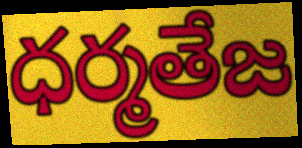
ధర్మతేజ